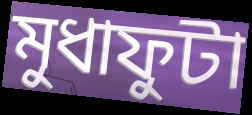
মুধাফুটা